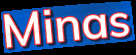
Minas